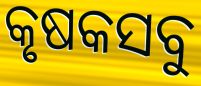
କୃଷକସବୁ